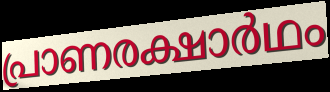
പ്രാണരക്ഷാർഥം